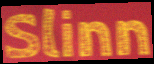
Slinn